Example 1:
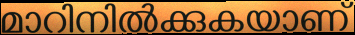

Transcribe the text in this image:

മാറിനിൽക്കുകയാണ്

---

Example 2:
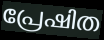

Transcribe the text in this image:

പ്രേഷിത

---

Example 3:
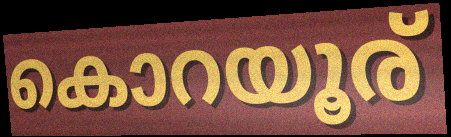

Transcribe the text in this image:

കൊറയൂര്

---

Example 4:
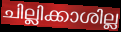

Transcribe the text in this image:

ചില്ലിക്കാശില്ല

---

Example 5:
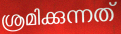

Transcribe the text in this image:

ശ്രമിക്കുന്നത്